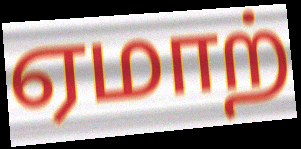
ஏமாற்